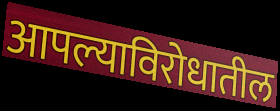
आपल्याविरोधातील